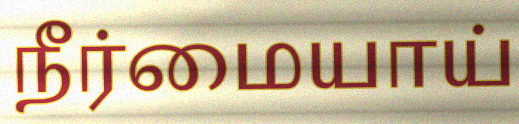
நீர்மையாய்